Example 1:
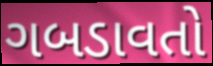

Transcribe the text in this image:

ગબડાવતો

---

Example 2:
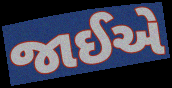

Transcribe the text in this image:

જાઈએ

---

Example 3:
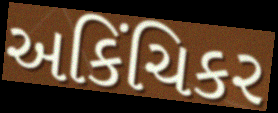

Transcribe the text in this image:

અકિંચિકર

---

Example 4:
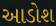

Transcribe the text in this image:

આડોશ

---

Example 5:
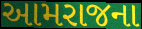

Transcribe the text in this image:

આમરાજના